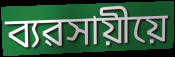
ব্যৱসায়ীয়ে